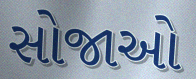
સોજાઓ